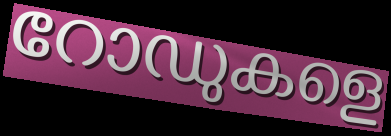
റോഡുകളെ